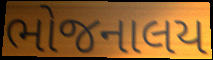
ભોજનાલય